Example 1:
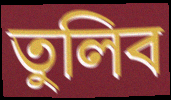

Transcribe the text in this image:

তুলিব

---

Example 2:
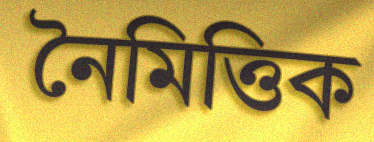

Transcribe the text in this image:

নৈমিত্তিক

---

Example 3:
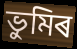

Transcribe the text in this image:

ভুমিৰ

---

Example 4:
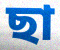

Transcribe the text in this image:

ছা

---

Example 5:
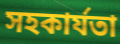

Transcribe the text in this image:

সহকাৰ্যতা